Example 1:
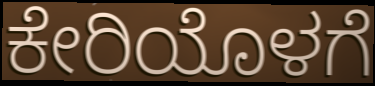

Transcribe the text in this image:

ಕೇರಿಯೊಳಗೆ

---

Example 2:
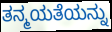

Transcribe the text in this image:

ತನ್ಮಯತೆಯನ್ನು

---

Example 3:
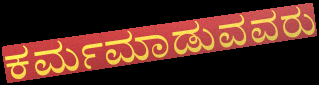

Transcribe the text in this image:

ಕರ್ಮಮಾಡುವವರು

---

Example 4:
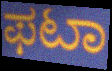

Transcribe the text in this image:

ಫಟಾ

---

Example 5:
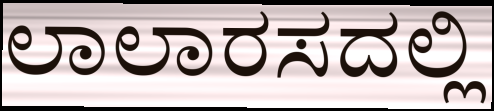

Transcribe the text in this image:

ಲಾಲಾರಸದಲ್ಲಿ